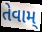
તેવામ્